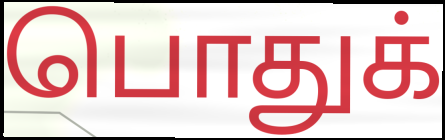
பொதுக்